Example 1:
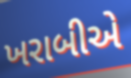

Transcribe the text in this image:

ખરાબીએ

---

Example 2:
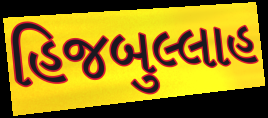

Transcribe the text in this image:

હિજબુલ્લાહ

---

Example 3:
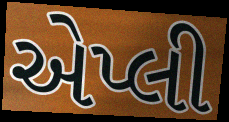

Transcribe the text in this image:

એપ્લી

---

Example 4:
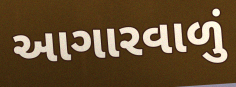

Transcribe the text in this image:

આગારવાળું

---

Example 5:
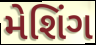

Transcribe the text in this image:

મેશિંગ